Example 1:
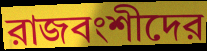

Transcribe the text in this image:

রাজবংশীদের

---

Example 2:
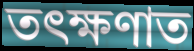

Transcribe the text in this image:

তৎক্ষণাত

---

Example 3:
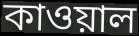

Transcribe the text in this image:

কাওয়াল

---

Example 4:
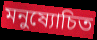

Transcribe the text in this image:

মনুষ্যোচিত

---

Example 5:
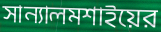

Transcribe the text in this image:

সান্যালমশাইয়ের